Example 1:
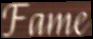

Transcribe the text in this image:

Fame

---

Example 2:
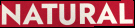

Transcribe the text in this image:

NATURAL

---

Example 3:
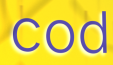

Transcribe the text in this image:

cod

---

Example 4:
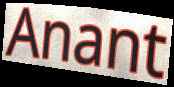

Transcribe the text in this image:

Anant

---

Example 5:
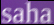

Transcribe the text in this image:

saha